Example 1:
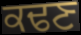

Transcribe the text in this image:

ਕਢਣ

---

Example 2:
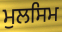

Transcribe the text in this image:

ਮੁਲਸਿਮ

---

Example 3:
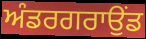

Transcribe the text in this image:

ਅੰਡਰਗਰਾਉਂਡ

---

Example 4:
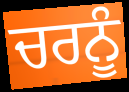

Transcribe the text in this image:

ਚਰਨੂੰ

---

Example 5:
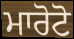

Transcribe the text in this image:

ਮਾਰੋਟੋ